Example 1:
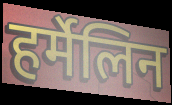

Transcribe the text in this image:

हर्मेलिन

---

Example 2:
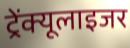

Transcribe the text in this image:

ट्रेंक्यूलाइजर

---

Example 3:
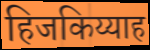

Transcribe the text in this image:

हिजकिय्याह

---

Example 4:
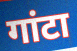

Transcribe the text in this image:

गांटा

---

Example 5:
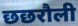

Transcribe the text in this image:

छछरौली